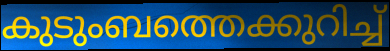
കുടുംബത്തെക്കുറിച്ച്